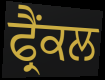
ਫ੍ਰੈਂਕਲ